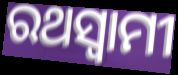
ରଥସ୍ୱାମୀ